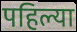
पहिल्या